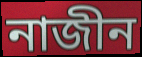
নাজীন